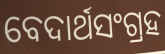
ବେଦାର୍ଥସଂଗ୍ରହ